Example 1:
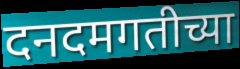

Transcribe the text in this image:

दनदमगतीच्या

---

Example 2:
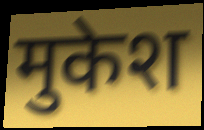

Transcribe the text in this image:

मुकेश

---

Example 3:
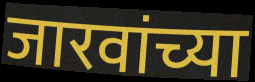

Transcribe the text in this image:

जारवांच्या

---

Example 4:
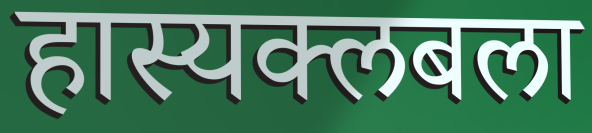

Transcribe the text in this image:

हास्यक्लबला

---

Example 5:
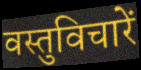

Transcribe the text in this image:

वस्तुविचारें